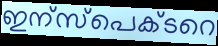
ഇന്സ്പെക്ടറെ